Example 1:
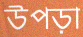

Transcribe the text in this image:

উপড়া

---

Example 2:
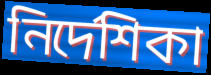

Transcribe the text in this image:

নির্দেশিকা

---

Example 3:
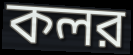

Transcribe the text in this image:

কলর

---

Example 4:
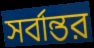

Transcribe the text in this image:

সর্বান্তর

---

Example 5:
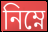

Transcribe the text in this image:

নিম্নে